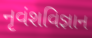
નૃવંશવિજ્ઞાન